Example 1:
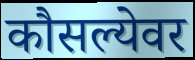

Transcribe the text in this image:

कौसल्येवर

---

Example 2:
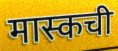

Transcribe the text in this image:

मास्कची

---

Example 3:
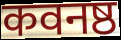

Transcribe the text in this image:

कवनष्ठ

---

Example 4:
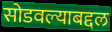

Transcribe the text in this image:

सोडवल्याबद्दल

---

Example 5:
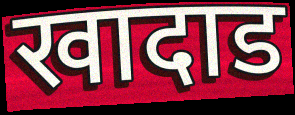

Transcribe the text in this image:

खादाड